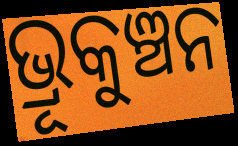
ଭ୍ରୂକୁଞ୍ଚନ